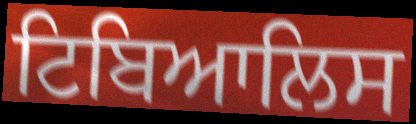
ਟਿਬਿਆਲਿਸ